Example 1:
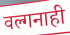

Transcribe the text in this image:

वल्गनाही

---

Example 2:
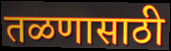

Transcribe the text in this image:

तळणासाठी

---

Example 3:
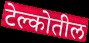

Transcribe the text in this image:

टेल्कोतील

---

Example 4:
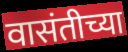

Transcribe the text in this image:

वासंतीच्या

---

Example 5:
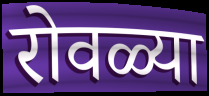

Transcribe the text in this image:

रोवळ्या